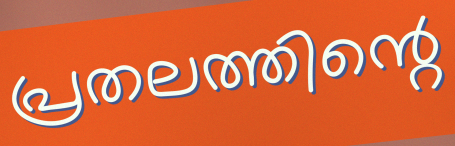
പ്രതലത്തിന്റെ